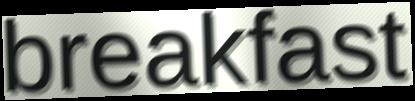
breakfast